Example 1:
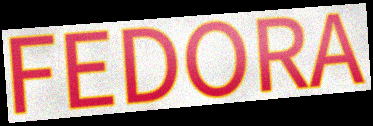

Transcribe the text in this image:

FEDORA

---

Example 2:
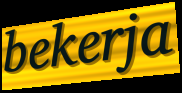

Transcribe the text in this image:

bekerja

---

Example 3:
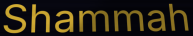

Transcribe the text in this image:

Shammah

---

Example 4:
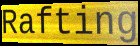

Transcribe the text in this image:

Rafting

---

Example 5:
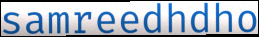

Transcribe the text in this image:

samreedhdho